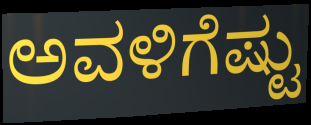
ಅವಳಿಗೆಷ್ಟು